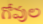
గోవుల